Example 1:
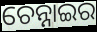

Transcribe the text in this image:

ଚେନ୍ନାଇର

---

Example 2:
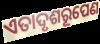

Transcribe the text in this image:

ଏତାଦୃଶରୂପେଣ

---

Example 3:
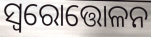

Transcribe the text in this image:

ସ୍ବରୋତ୍ତୋଳନ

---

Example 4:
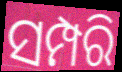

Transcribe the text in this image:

ସମ୍ପରି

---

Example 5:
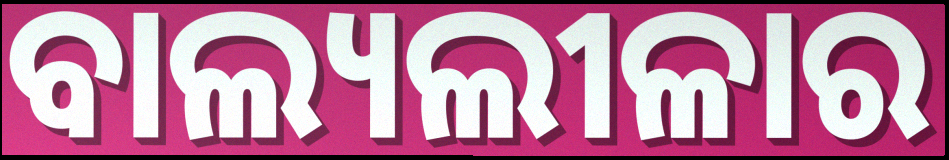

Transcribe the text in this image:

ବାଲ୍ୟଲୀଳାର